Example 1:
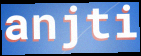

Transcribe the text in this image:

anjti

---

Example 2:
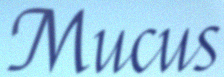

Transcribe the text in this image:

Mucus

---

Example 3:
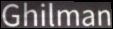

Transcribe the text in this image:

Ghilman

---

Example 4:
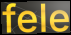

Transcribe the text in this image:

fele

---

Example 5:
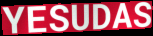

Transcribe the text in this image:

YESUDAS